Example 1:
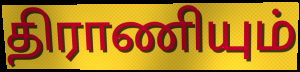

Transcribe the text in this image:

திராணியும்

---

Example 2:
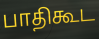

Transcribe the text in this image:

பாதிகூட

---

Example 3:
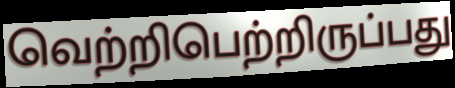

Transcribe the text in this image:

வெற்றிபெற்றிருப்பது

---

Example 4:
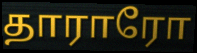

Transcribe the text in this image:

தாராரோ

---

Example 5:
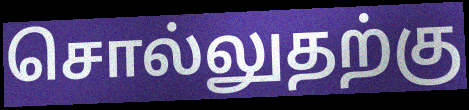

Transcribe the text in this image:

சொல்லுதற்கு